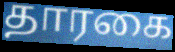
தாரகை